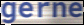
gerne